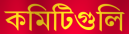
কমিটিগুলি